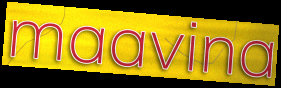
maavina